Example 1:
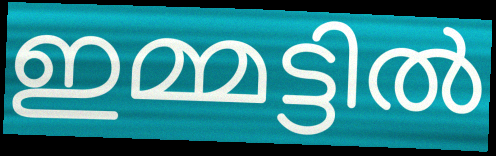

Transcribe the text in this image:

ഇമ്മട്ടിൽ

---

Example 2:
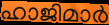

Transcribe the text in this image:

ഹാജിമാർ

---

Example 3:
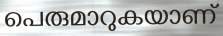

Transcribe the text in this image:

പെരുമാറുകയാണ്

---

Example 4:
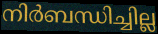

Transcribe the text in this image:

നിർബന്ധിച്ചില്ല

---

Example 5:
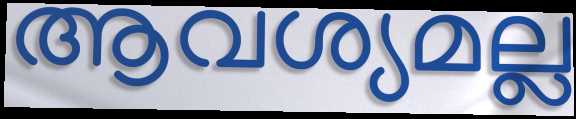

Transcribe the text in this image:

ആവശ്യമല്ല